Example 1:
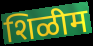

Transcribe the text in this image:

शिळीम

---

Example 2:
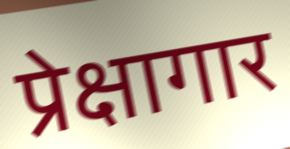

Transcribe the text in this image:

प्रेक्षागार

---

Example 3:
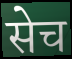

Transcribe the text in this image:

सेच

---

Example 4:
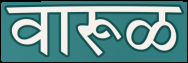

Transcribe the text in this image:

वारूळ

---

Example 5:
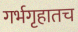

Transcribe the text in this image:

गर्भगृहातच